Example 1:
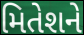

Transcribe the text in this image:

મિતેશને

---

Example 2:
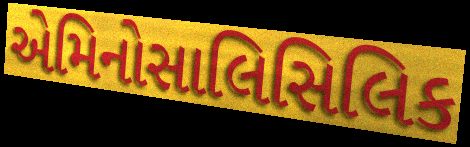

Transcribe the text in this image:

એમિનોસાલિસિલિક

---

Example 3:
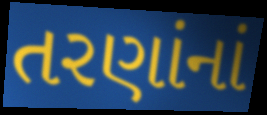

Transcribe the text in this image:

તરણાંનાં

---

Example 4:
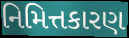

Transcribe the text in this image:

નિમિત્તકારણ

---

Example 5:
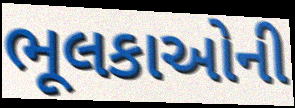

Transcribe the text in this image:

ભૂલકાઓની